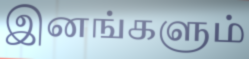
இனங்களும்